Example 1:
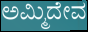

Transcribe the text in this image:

ಅಮ್ಮಿದೇವ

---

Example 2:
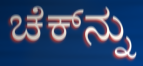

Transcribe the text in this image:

ಚೆಕ್‌ನ್ನು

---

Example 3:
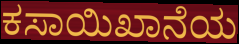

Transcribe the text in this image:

ಕಸಾಯಿಖಾನೆಯ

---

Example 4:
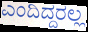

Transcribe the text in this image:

ಎಂದಿದ್ದರಲ್ಲ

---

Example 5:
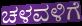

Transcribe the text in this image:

ಚಳವಳಿಗೆ